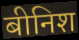
बीनिश